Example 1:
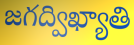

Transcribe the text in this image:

జగద్విఖ్యాతి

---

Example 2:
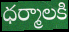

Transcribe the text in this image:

ధర్మాలకి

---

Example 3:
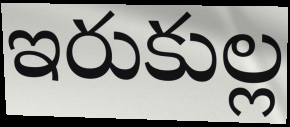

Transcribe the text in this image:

ఇరుకుల్ల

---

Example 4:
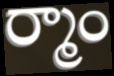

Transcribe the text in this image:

ర్మాం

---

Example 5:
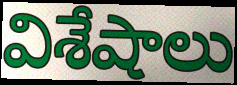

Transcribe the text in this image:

విశేషాలు